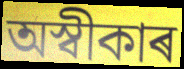
অস্বীকাৰ